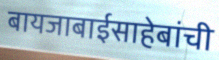
बायजाबाईसाहेबांची